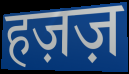
हज़ज़